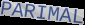
PARIMAL